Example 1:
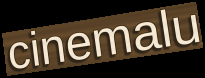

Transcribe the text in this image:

cinemalu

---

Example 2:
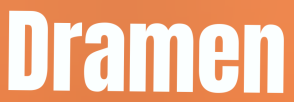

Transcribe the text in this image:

Dramen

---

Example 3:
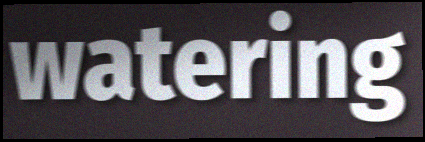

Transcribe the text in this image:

watering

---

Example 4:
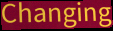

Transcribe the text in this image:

Changing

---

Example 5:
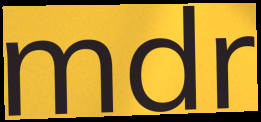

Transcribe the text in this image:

mdr